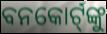
ବନକୋର୍ଟ୍‍ଙ୍କୁ